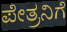
ಪೇತ್ರನಿಗೆ